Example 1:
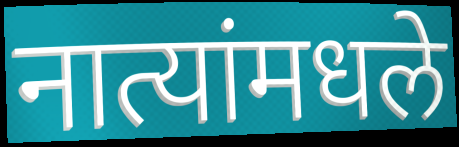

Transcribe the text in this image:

नात्यांमधले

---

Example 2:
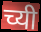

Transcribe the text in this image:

च्यी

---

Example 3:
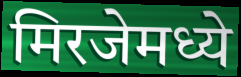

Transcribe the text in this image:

मिरजेमध्ये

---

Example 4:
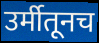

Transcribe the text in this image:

उर्मीतूनच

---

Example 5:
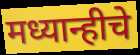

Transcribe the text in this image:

मध्यान्हीचे